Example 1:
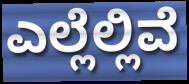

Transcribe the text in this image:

ಎಲ್ಲೆಲ್ಲಿವೆ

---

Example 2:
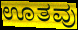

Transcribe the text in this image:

ಊತವು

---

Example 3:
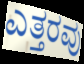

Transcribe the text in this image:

ಎತ್ತರವು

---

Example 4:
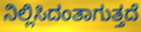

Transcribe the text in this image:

ನಿಲ್ಲಿಸಿದಂತಾಗುತ್ತದೆ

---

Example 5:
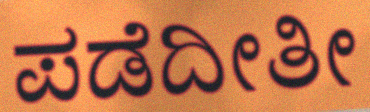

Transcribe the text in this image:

ಪಡೆದೀತೀ